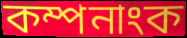
কম্পনাংক